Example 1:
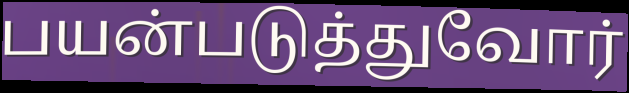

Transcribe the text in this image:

பயன்படுத்துவோர்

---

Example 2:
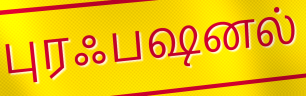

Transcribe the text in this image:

புரஃபஷனல்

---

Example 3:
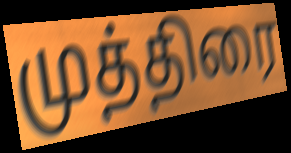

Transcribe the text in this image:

முத்திரை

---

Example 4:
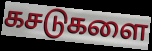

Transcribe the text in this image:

கசடுகளை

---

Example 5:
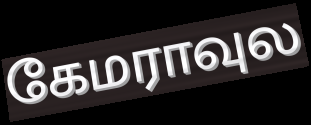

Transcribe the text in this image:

கேமராவுல